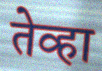
तेव्हा